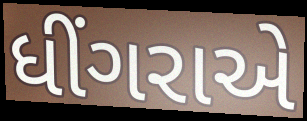
ધીંગરાએ